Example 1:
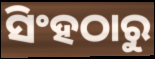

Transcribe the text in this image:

ସିଂହଠାରୁ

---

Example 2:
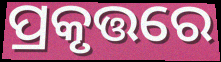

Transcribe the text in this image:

ପ୍ରକୃତ୍ତରେ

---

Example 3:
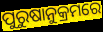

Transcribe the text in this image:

ପୁରୁଷାନୁକ୍ରମରେ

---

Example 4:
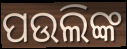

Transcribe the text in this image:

ପଉଲିଙ୍କ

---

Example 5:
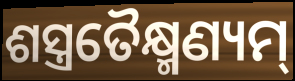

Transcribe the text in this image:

ଶସ୍ତ୍ରତୈକ୍ଷ୍ମଣ୍ୟମ୍